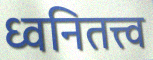
ध्वनितत्त्व